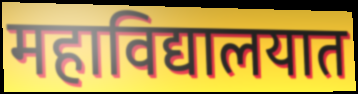
महाविद्यालयात